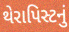
થેરાપિસ્ટનું